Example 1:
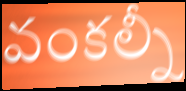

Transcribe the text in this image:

వంకల్నీ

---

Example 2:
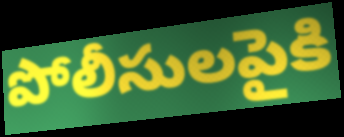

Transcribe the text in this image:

పోలీసులపైకి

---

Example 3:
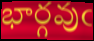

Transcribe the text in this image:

భార్గవుఁ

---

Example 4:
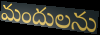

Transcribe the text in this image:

మందులను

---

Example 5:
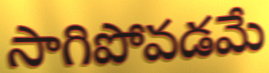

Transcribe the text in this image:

సాగిపోవడమే